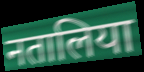
नतालिया